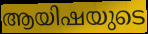
ആയിഷയുടെ